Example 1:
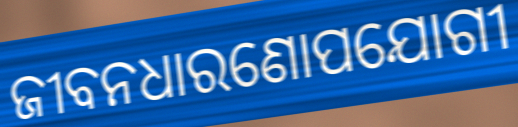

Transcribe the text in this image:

ଜୀବନଧାରଣୋପଯୋଗୀ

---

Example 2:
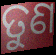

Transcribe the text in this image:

ତୁଣ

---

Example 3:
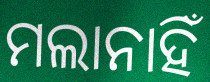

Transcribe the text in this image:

ମଲାନାହିଁ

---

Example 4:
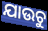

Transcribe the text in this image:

ଯାଉଚୁ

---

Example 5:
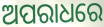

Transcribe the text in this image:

ଅପରାଧରେ